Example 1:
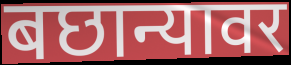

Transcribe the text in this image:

बछान्यावर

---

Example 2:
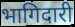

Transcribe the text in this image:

भागिदारी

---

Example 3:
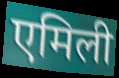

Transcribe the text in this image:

एमिली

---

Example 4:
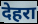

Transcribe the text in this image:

देहरा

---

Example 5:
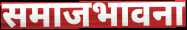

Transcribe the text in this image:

समाजभावना